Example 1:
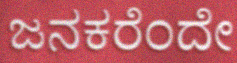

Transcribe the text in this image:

ಜನಕರೆಂದೇ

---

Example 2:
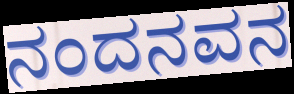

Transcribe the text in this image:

ನಂದನವನ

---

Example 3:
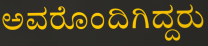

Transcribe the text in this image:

ಅವರೊಂದಿಗಿದ್ದರು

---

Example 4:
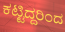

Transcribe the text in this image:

ಕಟ್ಟಿದ್ದರಿಂದ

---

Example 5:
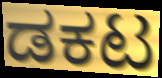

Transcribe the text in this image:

ಡಕಟ